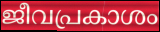
ജീവപ്രകാശം